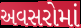
અવસરોમાં